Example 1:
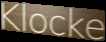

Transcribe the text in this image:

Klocke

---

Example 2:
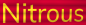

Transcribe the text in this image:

Nitrous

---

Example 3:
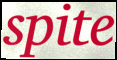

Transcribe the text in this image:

spite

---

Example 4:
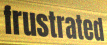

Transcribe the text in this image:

frustrated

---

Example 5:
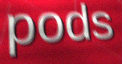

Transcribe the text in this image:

pods